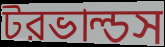
টরভাল্ডস